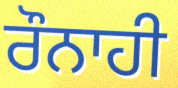
ਰੌਨਾਹੀ